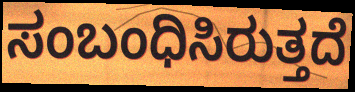
ಸಂಬಂಧಿಸಿರುತ್ತದೆ